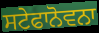
ਸਟੇਫਾਨੋਵਨਾ